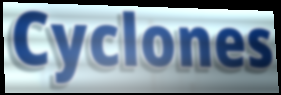
Cyclones